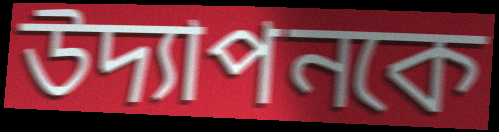
উদ্যাপনকে